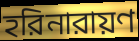
হরিনারায়ণ